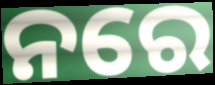
ନରେ